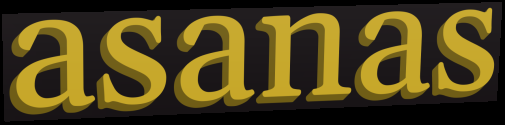
asanas